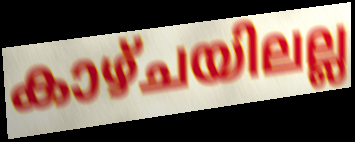
കാഴ്ചയിലല്ല